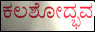
ಕಲಶೋದ್ಭವ